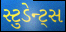
સ્ટુડેન્ટ્સ